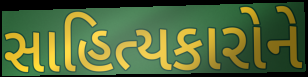
સાહિત્યકારોને